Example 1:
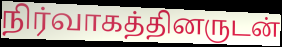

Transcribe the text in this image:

நிர்வாகத்தினருடன்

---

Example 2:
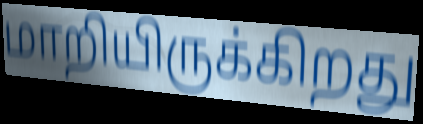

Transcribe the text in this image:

மாறியிருக்கிறது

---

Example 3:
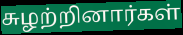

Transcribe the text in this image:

சுழற்றினார்கள்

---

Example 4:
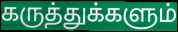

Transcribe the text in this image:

கருத்துக்களும்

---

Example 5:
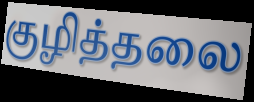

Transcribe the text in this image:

குழித்தலை